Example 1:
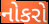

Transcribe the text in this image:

નોકરો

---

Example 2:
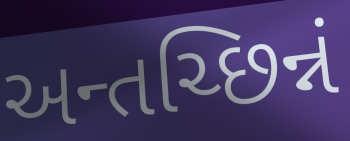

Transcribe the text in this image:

અન્તચ્છિન્નં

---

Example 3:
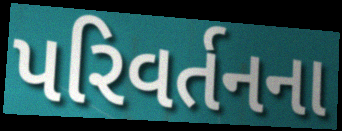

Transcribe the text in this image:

પરિવર્તનના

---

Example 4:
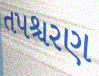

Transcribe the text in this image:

તપશ્ચરણ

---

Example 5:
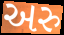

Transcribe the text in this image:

અરુ